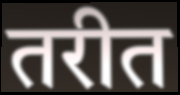
तरीत